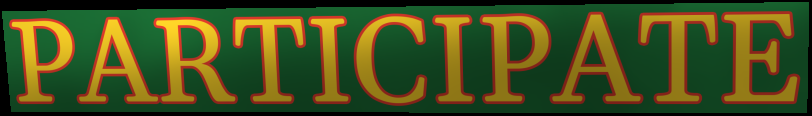
PARTICIPATE